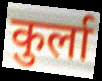
कुर्ला